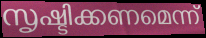
സൃഷ്ടിക്കണമെന്ന്